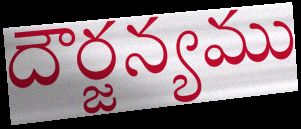
దౌర్జన్యము